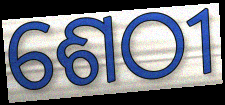
ଶେଠୀ